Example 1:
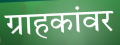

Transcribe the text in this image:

ग्राहकांवर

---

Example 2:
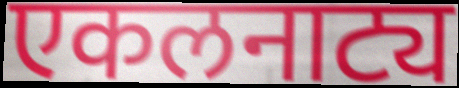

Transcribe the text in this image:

एकलनाट्य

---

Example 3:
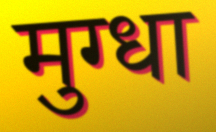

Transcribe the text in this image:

मुग्धा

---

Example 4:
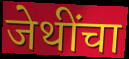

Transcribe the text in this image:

जेथींचा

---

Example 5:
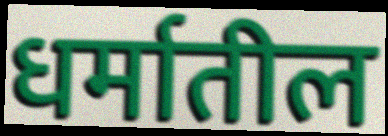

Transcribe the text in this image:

धर्मातील